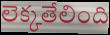
లెక్కతేలింది